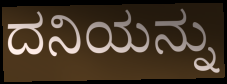
ದನಿಯನ್ನು